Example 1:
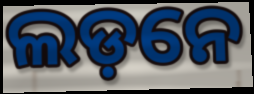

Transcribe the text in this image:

ଲଡ଼ନେ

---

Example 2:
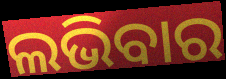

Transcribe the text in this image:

ଲଭିବାର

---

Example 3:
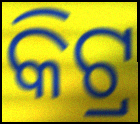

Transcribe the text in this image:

କିଟ୍ର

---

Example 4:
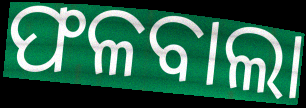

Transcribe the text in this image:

ଫଳବାଲା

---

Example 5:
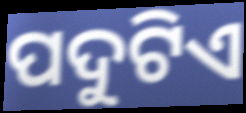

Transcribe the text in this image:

ପଦୁଟିଏ